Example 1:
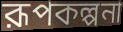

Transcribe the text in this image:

রূপকল্পনা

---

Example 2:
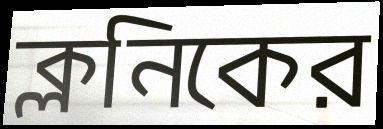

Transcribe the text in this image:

ক্লনিকের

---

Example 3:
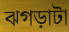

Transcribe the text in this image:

ঝগড়াটা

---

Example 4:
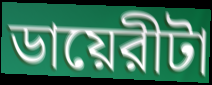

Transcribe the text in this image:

ডায়েরীটা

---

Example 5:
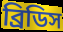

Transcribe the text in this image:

ব্রিডিস